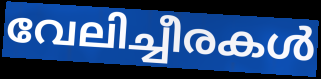
വേലിച്ചീരകൾ